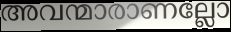
അവന്മാരാണല്ലോ